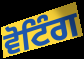
ਵੋਟਿੰਗ